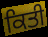
ਕਿਤੀ